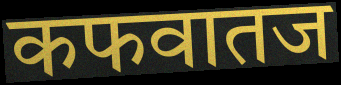
कफवातज